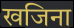
खजिना